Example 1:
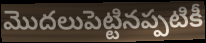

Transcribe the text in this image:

మొదలుపెట్టినప్పటికీ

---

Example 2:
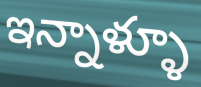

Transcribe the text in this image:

ఇన్నాళ్ళూ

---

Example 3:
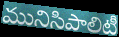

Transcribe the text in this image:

మునిసిపాలిటీ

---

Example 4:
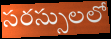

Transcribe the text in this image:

సరస్సులలో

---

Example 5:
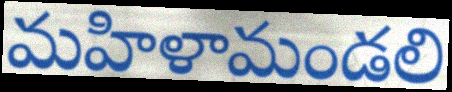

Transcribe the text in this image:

మహిళామండలి